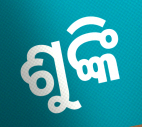
ଶୁଙ୍କି